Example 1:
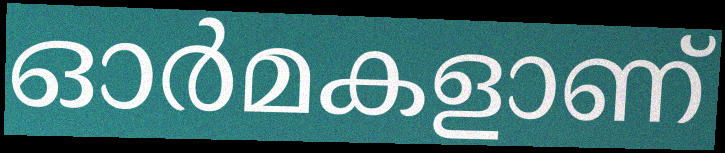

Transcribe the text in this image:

ഓർമകളാണ്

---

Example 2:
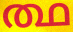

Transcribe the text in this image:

ത്ഥ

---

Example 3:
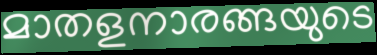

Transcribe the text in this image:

മാതളനാരങ്ങയുടെ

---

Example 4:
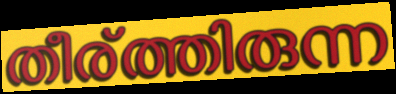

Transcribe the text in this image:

തീര്ത്തിരുന്ന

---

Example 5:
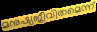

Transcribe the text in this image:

മനുഷ്യജീവിതമെന്ന്